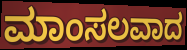
ಮಾಂಸಲವಾದ